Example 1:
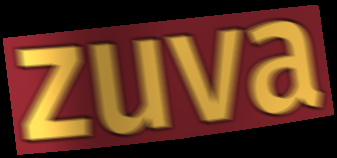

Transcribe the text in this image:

zuva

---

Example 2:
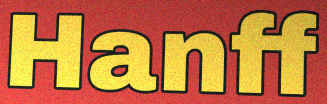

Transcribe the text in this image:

Hanff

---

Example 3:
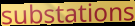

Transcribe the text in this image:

substations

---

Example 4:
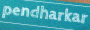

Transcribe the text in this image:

pendharkar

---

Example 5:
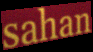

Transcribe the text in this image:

sahan